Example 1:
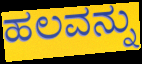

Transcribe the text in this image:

ಹಲವನ್ನು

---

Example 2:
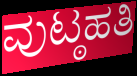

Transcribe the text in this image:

ವುಟ್ಠಹತಿ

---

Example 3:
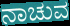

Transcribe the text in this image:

ನಾಚುವ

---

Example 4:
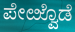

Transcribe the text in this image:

ಪೇೞ್ವೊಡೆ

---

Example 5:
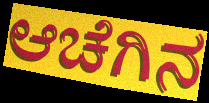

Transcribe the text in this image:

ಆಚೆಗಿನ